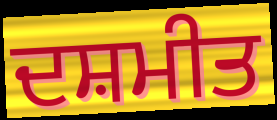
ਦਸ਼ਮੀਤ